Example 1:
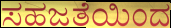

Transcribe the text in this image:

ಸಹಜತೆಯಿಂದ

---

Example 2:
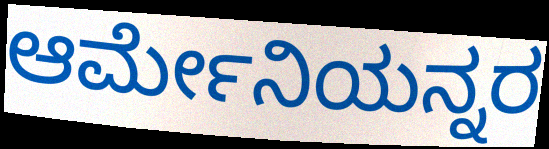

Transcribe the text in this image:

ಆರ್ಮೇನಿಯನ್ನರ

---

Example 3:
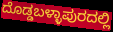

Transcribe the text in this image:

ದೊಡ್ಡಬಳ್ಳಾಪುರದಲ್ಲಿ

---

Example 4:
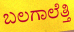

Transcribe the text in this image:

ಬಲಗಾಲೆತ್ತಿ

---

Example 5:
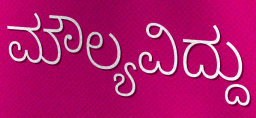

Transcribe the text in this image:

ಮೌಲ್ಯವಿದ್ದು